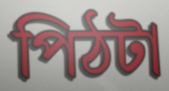
পিঠটা